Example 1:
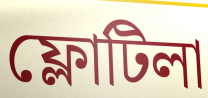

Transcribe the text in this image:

ফ্লোটিলা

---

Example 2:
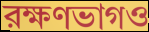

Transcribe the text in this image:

রক্ষণভাগও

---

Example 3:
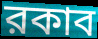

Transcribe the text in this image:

রকাব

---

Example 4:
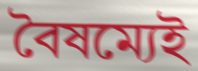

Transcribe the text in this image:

বৈষম্যেই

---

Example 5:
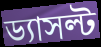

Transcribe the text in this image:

ড্যাসল্ট